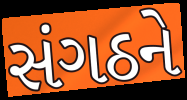
સંગઠને